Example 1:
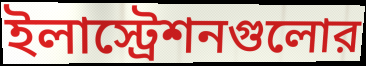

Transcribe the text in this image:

ইলাস্ট্রেশনগুলোর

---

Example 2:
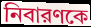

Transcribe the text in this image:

নিবারণকে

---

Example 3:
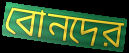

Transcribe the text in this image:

বোনদের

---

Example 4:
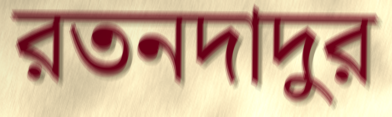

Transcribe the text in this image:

রতনদাদুর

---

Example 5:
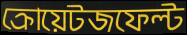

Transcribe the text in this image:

ক্রোয়েটজফেল্ট